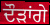
ਦੌੜਾਂਗੇ